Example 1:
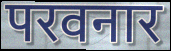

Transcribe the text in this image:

परवनार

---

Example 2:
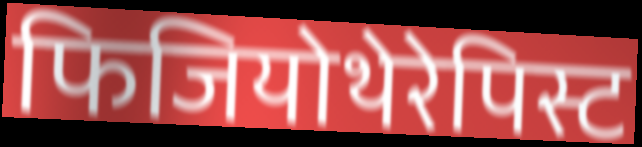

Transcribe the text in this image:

फिजियोथेरेपिस्ट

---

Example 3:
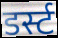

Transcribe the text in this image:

डर्स्ट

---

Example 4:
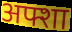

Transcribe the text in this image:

अफ्शा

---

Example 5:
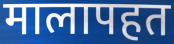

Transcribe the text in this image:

मालापहत